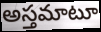
అస్తమాటూ